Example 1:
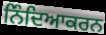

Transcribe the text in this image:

ਨਿੰਦਿਆਕਰਨ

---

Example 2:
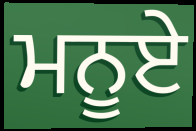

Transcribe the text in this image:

ਮਨੂਏ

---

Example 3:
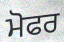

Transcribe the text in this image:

ਮੋਫਰ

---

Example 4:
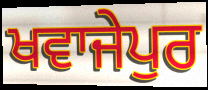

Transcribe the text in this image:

ਖਵਾਜੇਪੁਰ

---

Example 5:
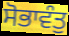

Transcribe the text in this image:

ਸੋਭਾਵੰਤੁ